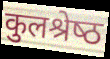
कुलश्रेष्‍ठ